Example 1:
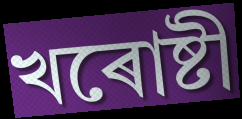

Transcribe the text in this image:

খৰোষ্টী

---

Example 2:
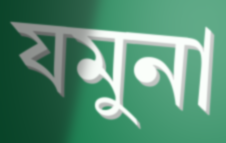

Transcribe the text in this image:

যমুনা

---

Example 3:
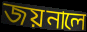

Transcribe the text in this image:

জয়নালে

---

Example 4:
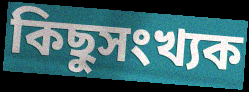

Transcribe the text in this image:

কিছুসংখ্যক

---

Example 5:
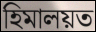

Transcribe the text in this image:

হিমালয়ত